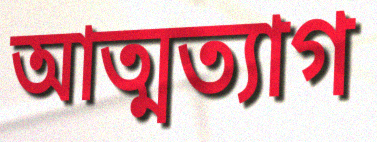
আত্মত্যাগ